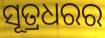
ସୂତ୍ରଧରର